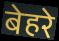
बेहरे